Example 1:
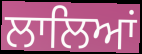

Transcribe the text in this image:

ਲਾਲਿਆਂ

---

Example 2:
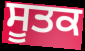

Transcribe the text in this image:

ਸੂਤਕ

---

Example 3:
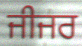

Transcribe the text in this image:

ਜੀਜਰ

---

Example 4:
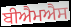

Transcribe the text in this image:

ਬੀਐਮਐਸ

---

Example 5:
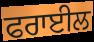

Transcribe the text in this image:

ਫਰਾਈਲ